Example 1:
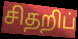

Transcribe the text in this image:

சிதறிப்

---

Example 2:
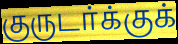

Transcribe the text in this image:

குருடர்க்குக்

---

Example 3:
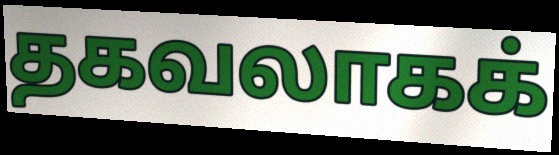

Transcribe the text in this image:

தகவலாகக்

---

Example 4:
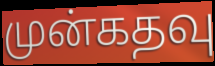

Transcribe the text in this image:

முன்கதவு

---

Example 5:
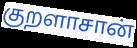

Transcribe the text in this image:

குறளாசான்